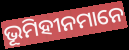
ଭୂମିହୀନମାନେ